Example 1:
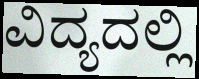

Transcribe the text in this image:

ವಿದ್ಯದಲ್ಲಿ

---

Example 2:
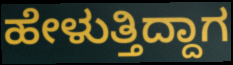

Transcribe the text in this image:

ಹೇಳುತ್ತಿದ್ದಾಗ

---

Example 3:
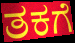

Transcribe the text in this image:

ತಕಗೆ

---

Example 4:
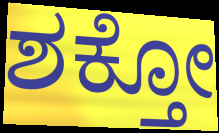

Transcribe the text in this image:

ಶಕ್ತೋ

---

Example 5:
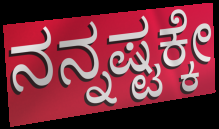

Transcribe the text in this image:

ನನ್ನಷ್ಟಕ್ಕೇ